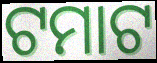
ଟମାଟ